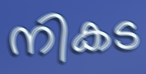
നികട